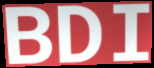
BDI